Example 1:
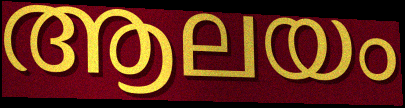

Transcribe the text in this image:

ആലയം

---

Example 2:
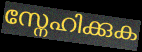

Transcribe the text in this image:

സ്നേഹിക്കുക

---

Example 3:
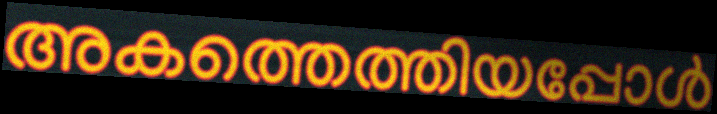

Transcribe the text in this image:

അകത്തെത്തിയപ്പോൾ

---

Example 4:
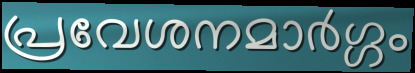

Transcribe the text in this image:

പ്രവേശനമാർഗ്ഗം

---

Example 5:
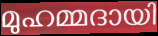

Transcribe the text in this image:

മുഹമ്മദായി